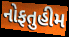
નોફતુહીમ